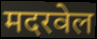
मदरवेल